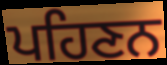
ਪਹਿਣਨ